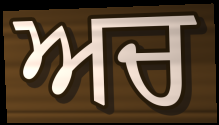
ਅਚ